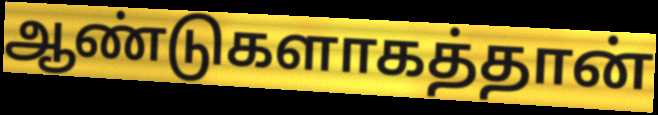
ஆண்டுகளாகத்தான்